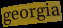
georgia